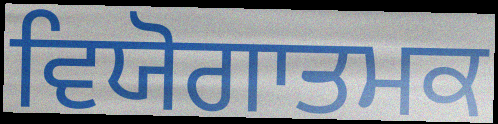
ਵਿਯੋਗਾਤਮਕ